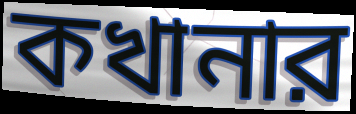
কখানার